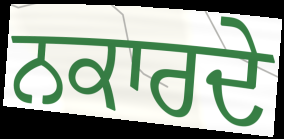
ਨਕਾਰਦੇ